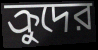
ক্রুদের